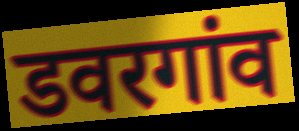
डवरगांव